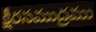
క్షీరసముద్రము